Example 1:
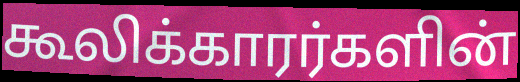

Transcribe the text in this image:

கூலிக்காரர்களின்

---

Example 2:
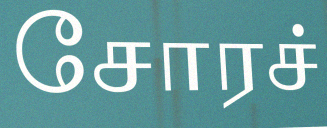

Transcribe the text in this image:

சோரச்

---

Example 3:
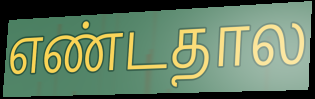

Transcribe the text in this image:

எண்டதால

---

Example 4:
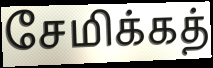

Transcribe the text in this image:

சேமிக்கத்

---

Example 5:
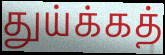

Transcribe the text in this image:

துய்க்கத்